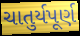
ચાતુર્યપૂર્ણ